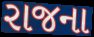
રાજના